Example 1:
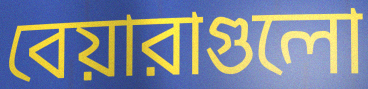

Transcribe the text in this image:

বেয়ারাগুলো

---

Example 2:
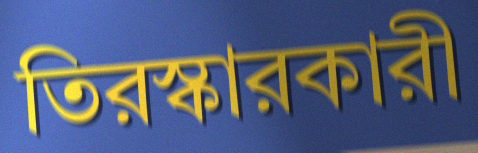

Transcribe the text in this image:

তিরস্কারকারী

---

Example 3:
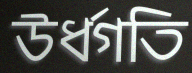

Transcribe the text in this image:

উর্ধগতি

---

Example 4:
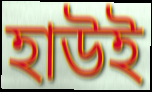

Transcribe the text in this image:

হাউই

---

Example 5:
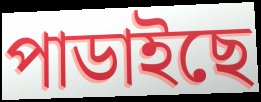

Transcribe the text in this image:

পাডাইছে